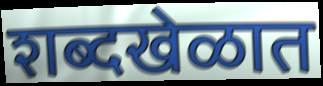
शब्दखेळात